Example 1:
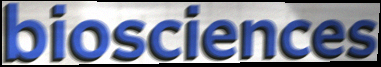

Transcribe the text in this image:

biosciences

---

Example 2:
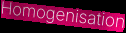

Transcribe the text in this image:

Homogenisation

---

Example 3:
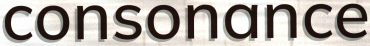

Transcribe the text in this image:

consonance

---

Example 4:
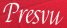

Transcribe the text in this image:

Presvu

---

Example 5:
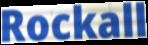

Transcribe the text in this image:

Rockall